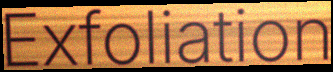
Exfoliation